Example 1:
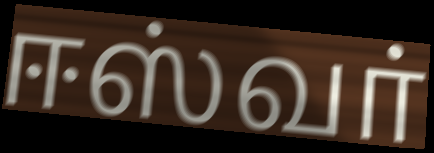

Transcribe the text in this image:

ஈஸ்வர்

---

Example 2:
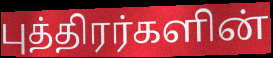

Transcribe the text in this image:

புத்திரர்களின்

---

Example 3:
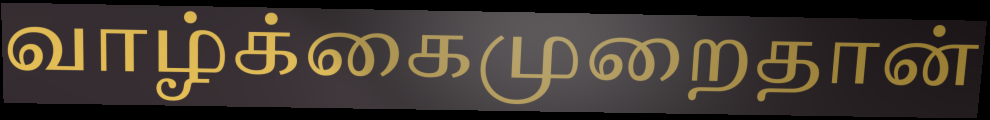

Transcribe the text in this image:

வாழ்க்கைமுறைதான்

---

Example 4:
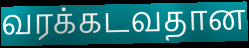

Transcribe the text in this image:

வரக்கடவதான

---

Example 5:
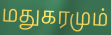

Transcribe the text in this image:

மதுகரமும்